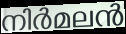
നിർമലൻ